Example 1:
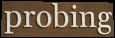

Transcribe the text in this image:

probing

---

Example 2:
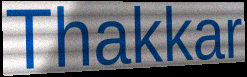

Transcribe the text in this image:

Thakkar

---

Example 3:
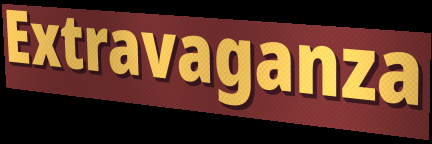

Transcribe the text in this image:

Extravaganza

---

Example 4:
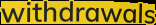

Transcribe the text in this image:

withdrawals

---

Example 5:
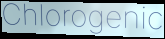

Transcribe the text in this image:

Chlorogenic